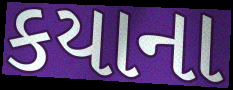
કયાના